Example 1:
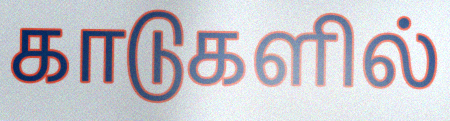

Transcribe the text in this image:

காடுகளில்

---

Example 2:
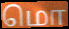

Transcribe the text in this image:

மொ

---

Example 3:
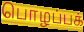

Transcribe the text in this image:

பொழப்பக்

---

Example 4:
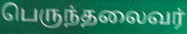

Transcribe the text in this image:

பெருந்தலைவர்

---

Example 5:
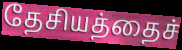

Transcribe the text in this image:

தேசியத்தைச்